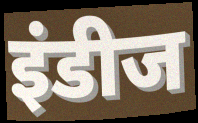
इंडीज